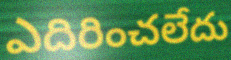
ఎదిరించలేదు